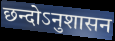
छन्दोऽनुशासन